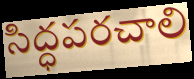
సిద్ధపరచాలి